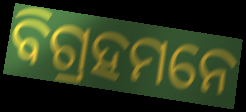
ବିଗ୍ରହମନେ